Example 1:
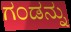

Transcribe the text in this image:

ಗಂಡನ್ನು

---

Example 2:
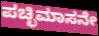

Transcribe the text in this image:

ಪಚ್ಛಿಮಾಸನೇ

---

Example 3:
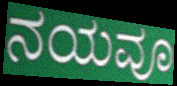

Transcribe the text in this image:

ನಯವೂ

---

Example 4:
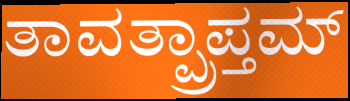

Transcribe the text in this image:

ತಾವತ್ಪ್ರಾಪ್ತಮ್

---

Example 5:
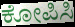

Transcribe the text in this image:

ಕೋಪಿಸಿ